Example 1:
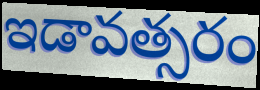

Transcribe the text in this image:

ఇడావత్సరం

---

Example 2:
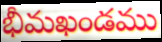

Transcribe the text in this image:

భీమఖండము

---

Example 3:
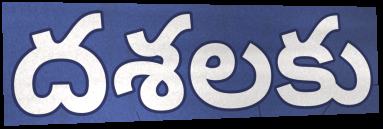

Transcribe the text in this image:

దశలకు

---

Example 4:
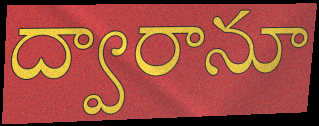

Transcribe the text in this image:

ద్వారానూ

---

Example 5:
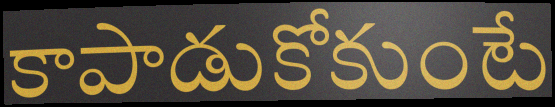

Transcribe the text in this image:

కాపాడుకోకుంటే